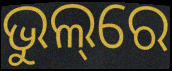
ଭୁଲ୍‌ରେ